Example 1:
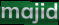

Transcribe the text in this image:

majid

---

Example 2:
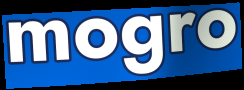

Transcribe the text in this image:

mogro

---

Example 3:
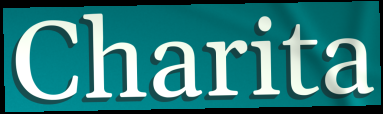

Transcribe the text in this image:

Charita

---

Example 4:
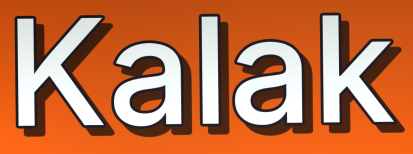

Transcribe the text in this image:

Kalak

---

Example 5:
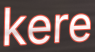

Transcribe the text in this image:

kere